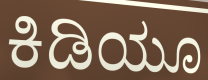
ಕಿಡಿಯೂ